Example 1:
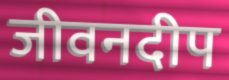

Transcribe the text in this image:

जीवनदीप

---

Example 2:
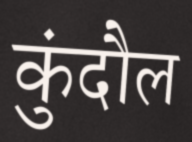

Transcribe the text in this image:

कुंदौल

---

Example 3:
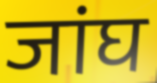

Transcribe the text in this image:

जांघ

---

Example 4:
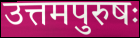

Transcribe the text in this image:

उत्तमपुरुषः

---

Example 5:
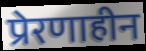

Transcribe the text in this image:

प्रेरणाहीन